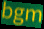
bgm